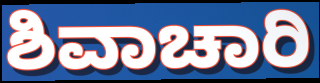
ಶಿವಾಚಾರಿ